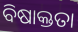
ବିଷାକ୍ତତା